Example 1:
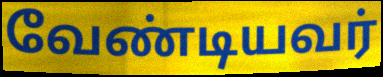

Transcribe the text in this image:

வேண்டியவர்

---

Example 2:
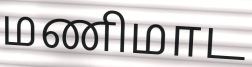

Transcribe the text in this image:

மணிமாட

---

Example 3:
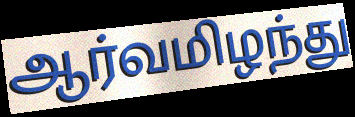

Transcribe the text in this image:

ஆர்வமிழந்து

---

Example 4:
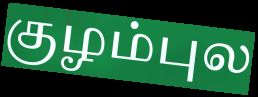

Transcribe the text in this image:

குழம்புல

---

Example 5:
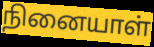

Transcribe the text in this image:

நினையாள்